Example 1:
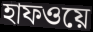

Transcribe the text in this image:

হাফওয়ে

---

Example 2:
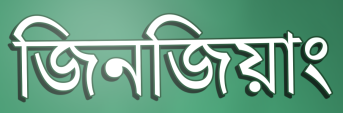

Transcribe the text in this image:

জিনজিয়াং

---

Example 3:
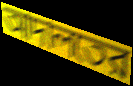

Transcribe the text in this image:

আদালতের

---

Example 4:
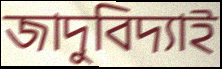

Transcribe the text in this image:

জাদুবিদ্যাই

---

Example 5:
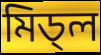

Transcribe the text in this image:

মিড্‌ল